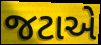
જટાએ